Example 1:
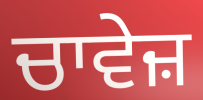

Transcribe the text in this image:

ਚਾਵੇਜ਼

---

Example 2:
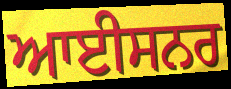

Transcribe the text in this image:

ਆਈਸਨਰ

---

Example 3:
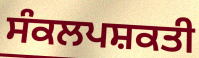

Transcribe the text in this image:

ਸੰਕਲਪਸ਼ਕਤੀ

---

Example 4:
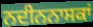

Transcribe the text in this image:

ਨਦੀਨਨਾਸਕਾਂ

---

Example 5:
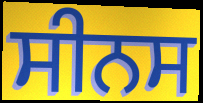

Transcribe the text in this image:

ਸੀਨਸ